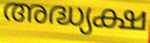
അദ്ധ്യക്ഷ